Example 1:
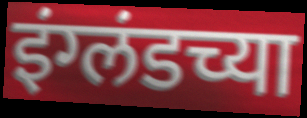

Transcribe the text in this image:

इंग्‍लंडच्या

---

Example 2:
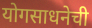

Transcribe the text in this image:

योगसाधनेची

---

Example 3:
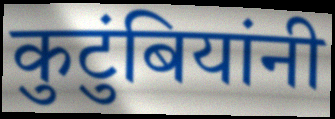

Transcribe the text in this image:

कुटुंबियांनी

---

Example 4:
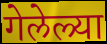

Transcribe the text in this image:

गेलेल्या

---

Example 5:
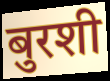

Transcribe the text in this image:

बुरशी